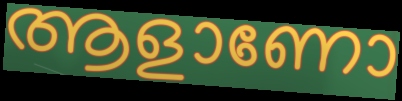
ആളാണോ